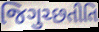
જિગુચ્છતીતિ